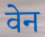
वेन